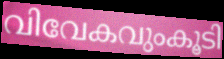
വിവേകവുംകൂടി